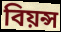
বিয়ন্স